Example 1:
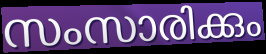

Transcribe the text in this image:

സംസാരിക്കും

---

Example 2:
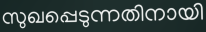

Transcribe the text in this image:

സുഖപ്പെടുന്നതിനായി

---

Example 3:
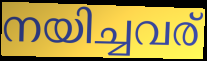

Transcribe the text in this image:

നയിച്ചവര്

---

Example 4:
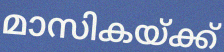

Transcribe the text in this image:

മാസികയ്ക്ക്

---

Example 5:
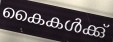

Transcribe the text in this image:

കൈകൾക്കു്